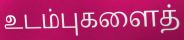
உடம்புகளைத்